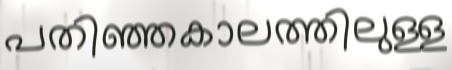
പതിഞ്ഞകാലത്തിലുള്ള